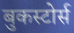
बुकस्टोर्स